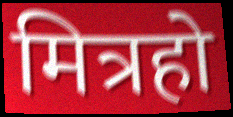
मित्रहो